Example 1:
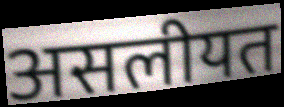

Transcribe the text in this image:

असलीयत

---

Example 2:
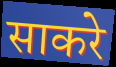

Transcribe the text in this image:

साकरे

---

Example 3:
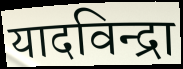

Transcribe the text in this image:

यादविन्द्रा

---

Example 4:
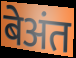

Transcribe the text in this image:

बेअंत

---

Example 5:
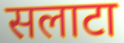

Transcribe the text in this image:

सलाटा